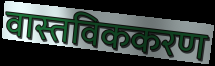
वास्तविककरण